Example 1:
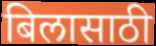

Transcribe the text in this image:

बिलासाठी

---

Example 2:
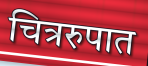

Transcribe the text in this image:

चित्ररुपात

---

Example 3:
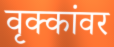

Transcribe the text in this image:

वृक्कांवर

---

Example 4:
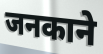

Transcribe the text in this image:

जनकाने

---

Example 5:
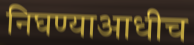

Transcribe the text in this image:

निघण्याआधीच